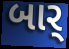
બાર્